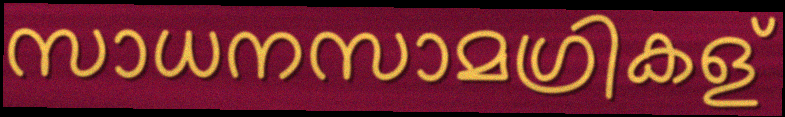
സാധനസാമഗ്രികള്